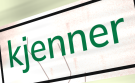
kjenner